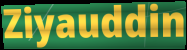
Ziyauddin